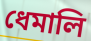
ধেমালি